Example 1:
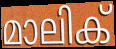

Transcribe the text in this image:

മാലിക്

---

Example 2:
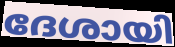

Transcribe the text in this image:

ദേശായി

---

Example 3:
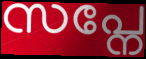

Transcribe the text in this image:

സപ്നേ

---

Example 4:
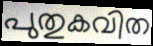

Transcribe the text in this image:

പുതുകവിത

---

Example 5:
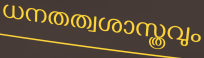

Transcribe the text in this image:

ധനതത്വശാസ്ത്രവും